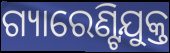
ଗ୍ୟାରେଣ୍ଟିଯୁକ୍ତ